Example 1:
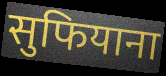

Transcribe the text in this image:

सुफियाना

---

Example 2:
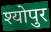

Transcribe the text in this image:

श्‍योपुर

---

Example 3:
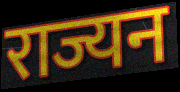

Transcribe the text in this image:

राज्यन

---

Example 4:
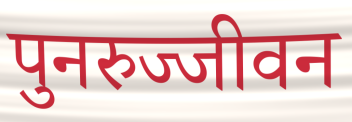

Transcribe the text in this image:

पुनरुज्जीवन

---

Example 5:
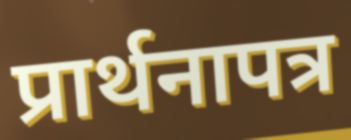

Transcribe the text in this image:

प्रार्थनापत्र